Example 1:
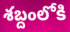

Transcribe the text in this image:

శబ్దంలోకి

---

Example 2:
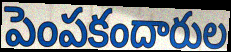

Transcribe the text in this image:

పెంపకందారుల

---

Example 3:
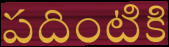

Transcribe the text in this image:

పదింటికి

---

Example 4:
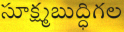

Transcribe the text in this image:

సూక్ష్మబుద్ధిగల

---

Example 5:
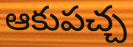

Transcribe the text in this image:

ఆకుపచ్చ